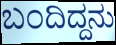
ಬಂದಿದ್ದನು